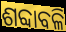
ଶବ୍ଦାବଳି